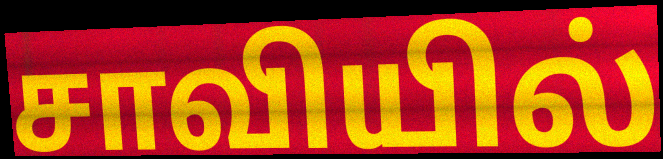
சாவியில்